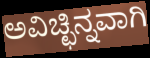
ಅವಿಚ್ಛಿನ್ನವಾಗಿ